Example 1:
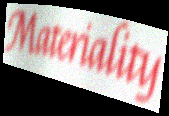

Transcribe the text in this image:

Materiality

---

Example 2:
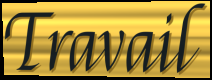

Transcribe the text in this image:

Travail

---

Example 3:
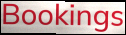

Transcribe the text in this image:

Bookings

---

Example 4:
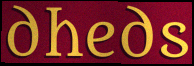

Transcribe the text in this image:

dheds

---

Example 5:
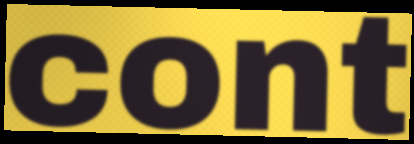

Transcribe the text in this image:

cont